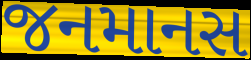
જનમાનસ